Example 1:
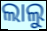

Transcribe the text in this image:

ଲାଲୁ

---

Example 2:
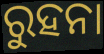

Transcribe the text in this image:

ରୁହନା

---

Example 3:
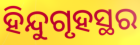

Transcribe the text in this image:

ହିନ୍ଦୁଗୃହସ୍ଥର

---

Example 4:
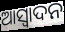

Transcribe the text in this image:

ଆସ୍ୱାଦନ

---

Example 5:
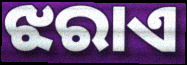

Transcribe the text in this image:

ଝରାଏ